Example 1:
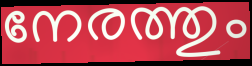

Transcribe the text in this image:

നേരത്തും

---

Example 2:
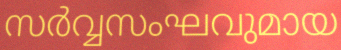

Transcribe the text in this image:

സർവ്വസംഘവുമായ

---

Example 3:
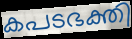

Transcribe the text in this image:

കപടഭക്തി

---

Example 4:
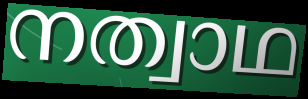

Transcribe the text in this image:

നത്വാഥ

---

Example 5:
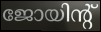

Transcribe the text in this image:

ജോയിന്റ്